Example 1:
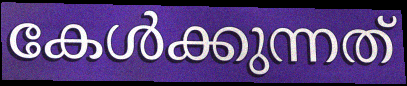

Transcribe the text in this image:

കേൾക്കുന്നത്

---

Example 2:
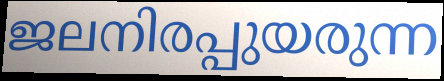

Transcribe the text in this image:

ജലനിരപ്പുയരുന്ന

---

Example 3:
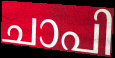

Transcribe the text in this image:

ചാപി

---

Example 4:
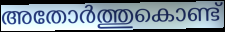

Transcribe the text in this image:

അതോർത്തുകൊണ്ട്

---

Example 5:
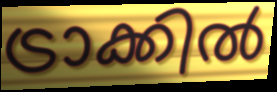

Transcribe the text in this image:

ട്രാക്കിൽ